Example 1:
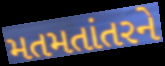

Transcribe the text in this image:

મતમતાંતરને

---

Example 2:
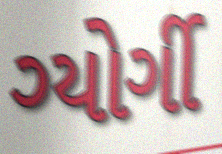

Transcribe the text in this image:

ગ્યોર્ગી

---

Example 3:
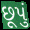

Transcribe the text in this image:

છૂપું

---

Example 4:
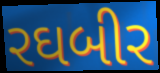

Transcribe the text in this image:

રઘબીર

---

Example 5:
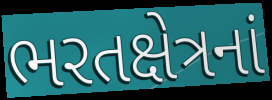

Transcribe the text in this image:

ભરતક્ષેત્રનાં